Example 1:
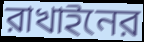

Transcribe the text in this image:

রাখাইনের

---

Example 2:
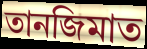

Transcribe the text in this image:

তানজিমাত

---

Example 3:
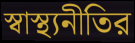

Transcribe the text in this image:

স্বাস্থ্যনীতির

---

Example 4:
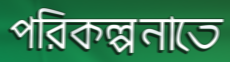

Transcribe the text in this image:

পরিকল্পনাতে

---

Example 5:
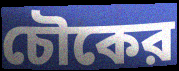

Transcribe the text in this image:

চৌকের